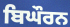
ਬਿਘੌਰਨ